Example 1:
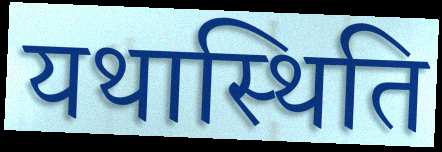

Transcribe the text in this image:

यथास्थिति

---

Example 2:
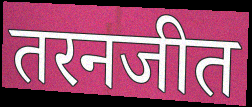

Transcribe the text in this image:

तरनजीत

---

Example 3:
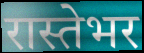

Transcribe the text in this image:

रास्तेभर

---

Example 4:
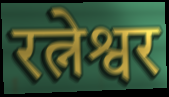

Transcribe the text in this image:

रत्नेश्वर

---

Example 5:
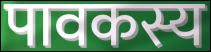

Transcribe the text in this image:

पावकस्य